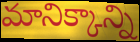
మానిక్కాన్ని